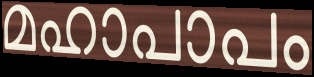
മഹാപാപം